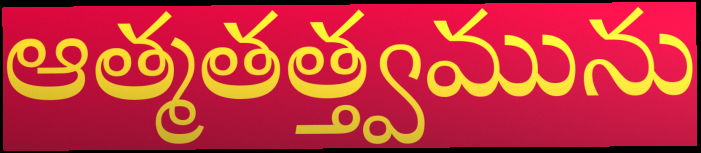
ఆత్మతత్త్వమును